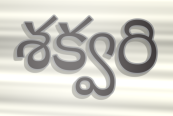
శక్వరి